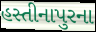
હસ્તીનાપુરના